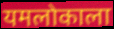
यमलोकाला